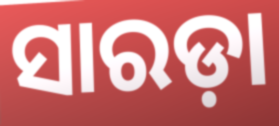
ସାରଡ଼ା